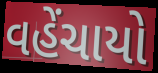
વહેંચાયો